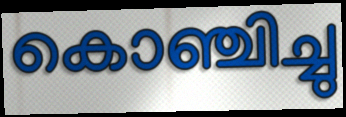
കൊഞ്ചിച്ചു